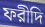
ফরীদি